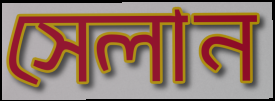
সেলান